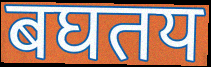
बघतय